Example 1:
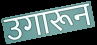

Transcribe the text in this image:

उगारून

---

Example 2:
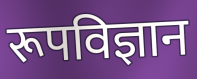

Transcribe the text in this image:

रूपविज्ञान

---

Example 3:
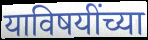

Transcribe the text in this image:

याविषयींच्या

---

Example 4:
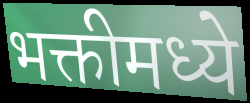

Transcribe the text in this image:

भक्तीमध्ये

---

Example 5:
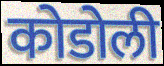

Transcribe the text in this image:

कोडोली